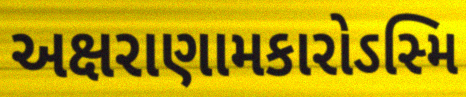
અક્ષરાણામકારોઽસ્મિ